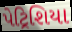
પેટ્રિશિયા